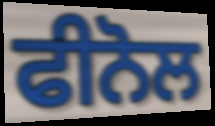
ਫੀਨੋਲ